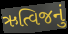
ઋત્વિજનું